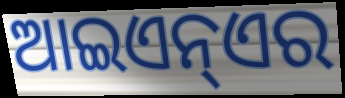
ଆଇଏନ୍ଏର